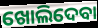
ଖୋଲିଦେବା